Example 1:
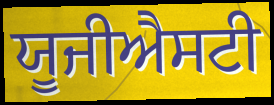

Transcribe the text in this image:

ਯੂਜੀਐਸਟੀ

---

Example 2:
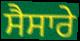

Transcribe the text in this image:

ਸੈਸਾਰੇ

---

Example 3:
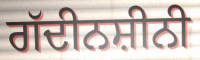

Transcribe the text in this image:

ਗੱਦੀਨਸ਼ੀਨੀ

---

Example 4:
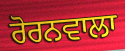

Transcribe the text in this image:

ਰੋਰਨਵਾਲਾ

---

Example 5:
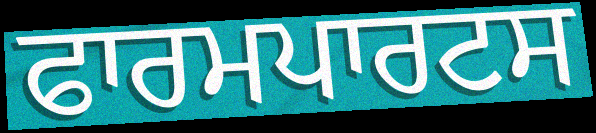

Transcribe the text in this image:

ਫਾਰਮਪਾਰਟਸ